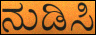
ನುಡಿಸಿ